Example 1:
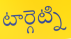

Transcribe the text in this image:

టార్గెట్ని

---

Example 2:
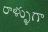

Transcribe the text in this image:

రాళ్ళుగా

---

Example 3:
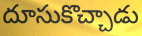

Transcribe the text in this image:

దూసుకొచ్చాడు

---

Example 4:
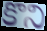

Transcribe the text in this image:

కొని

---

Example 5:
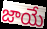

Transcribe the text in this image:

జాయే